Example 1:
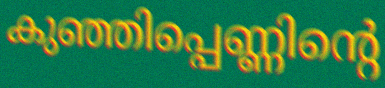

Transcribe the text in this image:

കുഞ്ഞിപ്പെണ്ണിന്റെ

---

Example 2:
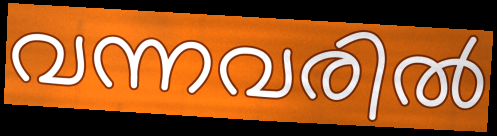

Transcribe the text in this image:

വന്നവരിൽ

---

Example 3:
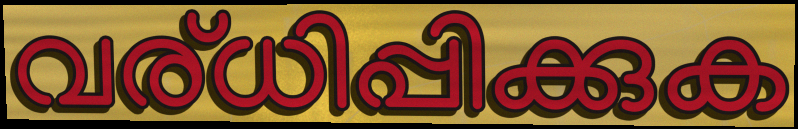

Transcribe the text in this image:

വര്ധിപ്പിക്കുക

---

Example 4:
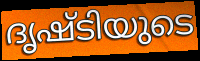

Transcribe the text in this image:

ദൃഷ്ടിയുടെ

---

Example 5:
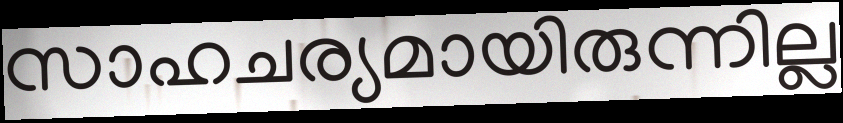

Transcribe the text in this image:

സാഹചര്യമായിരുന്നില്ല